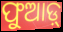
ଫୁଆଡ଼୍